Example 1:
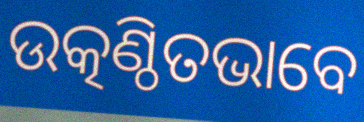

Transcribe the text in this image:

ଉତ୍କଣ୍ଠିତଭାବେ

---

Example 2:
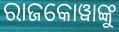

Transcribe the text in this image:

ରାଜକୋୱାଙ୍କୁ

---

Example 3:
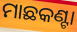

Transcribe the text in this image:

ମାଛକଣ୍ଟା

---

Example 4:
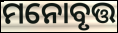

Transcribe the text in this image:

ମନୋବୃତ୍ତ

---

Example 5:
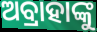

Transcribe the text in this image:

ଅବ୍ରାହାଙ୍କୁ